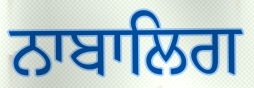
ਨਾਬਾਲਿਗ